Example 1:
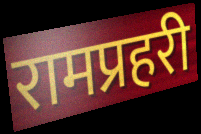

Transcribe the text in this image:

रामप्रहरी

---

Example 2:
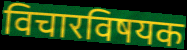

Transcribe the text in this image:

विचारविषयक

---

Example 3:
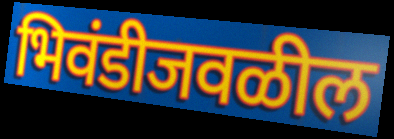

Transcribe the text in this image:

भिवंडीजवळील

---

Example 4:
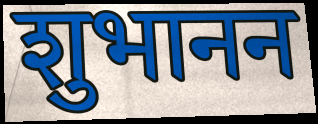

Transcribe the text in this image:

शुभानन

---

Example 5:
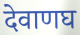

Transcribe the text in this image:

देवाणघ